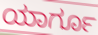
ಯಾರ್ಗೂ